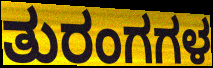
ತುರಂಗಗಳ